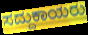
ಸದ್ದುಕಾಯರು